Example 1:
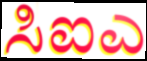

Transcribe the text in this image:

ಸಿಐಎ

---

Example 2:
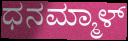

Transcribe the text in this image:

ಧನಮ್ಮಾಳ್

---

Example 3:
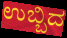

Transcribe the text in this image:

ಉಬ್ಬಿದ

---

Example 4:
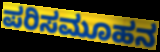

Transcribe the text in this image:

ಪರಿಸಮೂಹನ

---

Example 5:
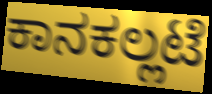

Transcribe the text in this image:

ಕಾನಕಲ್ಲಟೆ